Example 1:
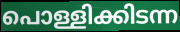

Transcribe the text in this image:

പൊള്ളിക്കിടന്ന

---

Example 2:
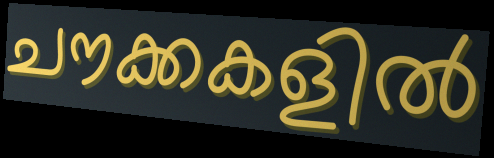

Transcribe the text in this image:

ചൗക്കകളിൽ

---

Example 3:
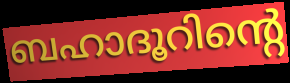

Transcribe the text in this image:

ബഹാദൂറിന്റെ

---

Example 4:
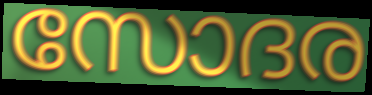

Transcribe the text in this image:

സോദര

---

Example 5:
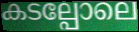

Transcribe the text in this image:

കടല്പോലെ